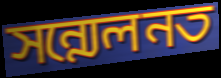
সন্মেলনত